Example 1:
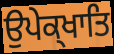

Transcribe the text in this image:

ਉਪੇਕ੍ਖਾਤਿ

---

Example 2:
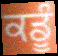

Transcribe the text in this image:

ਕਡੂੰ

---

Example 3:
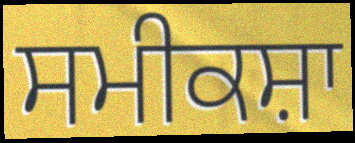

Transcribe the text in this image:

ਸਮੀਕਸ਼ਾ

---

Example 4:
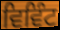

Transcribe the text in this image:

ਵਿਵਿੰਟ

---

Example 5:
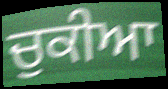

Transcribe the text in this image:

ਚੁਕੀਆ